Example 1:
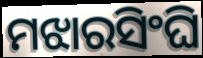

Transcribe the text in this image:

ମଝାରସିଂଘି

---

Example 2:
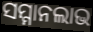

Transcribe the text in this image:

ସମ୍ମାନଲାଭ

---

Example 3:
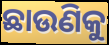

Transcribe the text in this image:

ଛାଉଣିକୁ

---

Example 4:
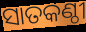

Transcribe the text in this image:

ସାତକଣ୍ଠୀ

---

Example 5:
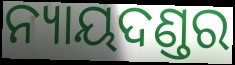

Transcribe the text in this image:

ନ୍ୟାୟଦଣ୍ଡର